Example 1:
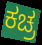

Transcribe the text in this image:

ಕಚ್ರ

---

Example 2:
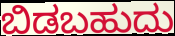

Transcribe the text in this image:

ಬಿಡಬಹುದು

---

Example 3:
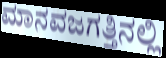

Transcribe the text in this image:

ಮಾನವಜಗತ್ತಿನಲ್ಲಿ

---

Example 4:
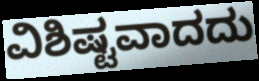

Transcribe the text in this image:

ವಿಶಿಷ್ಟವಾದದು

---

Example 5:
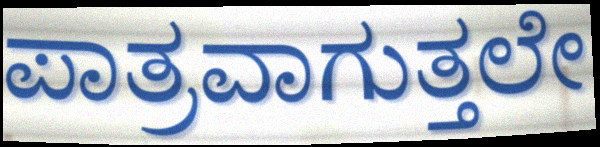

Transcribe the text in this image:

ಪಾತ್ರವಾಗುತ್ತಲೇ